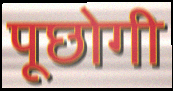
पूछोगी